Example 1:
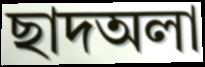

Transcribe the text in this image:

ছাদঅলা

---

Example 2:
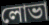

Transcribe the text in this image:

লোভা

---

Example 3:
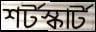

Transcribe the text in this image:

শর্টস্কার্ট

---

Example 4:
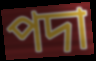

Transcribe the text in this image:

পদা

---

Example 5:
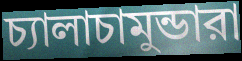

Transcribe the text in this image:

চ্যালাচামুন্ডারা